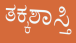
ತಕ್ಕಶಾಸ್ತಿ